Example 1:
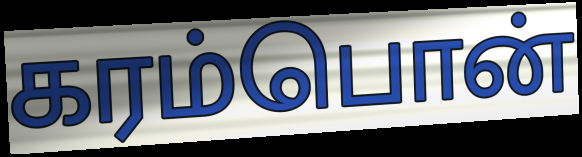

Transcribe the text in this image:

கரம்பொன்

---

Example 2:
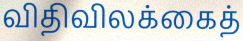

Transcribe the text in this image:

விதிவிலக்கைத்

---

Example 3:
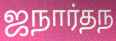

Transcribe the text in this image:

ஜநார்தந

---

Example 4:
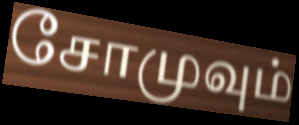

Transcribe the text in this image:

சோமுவும்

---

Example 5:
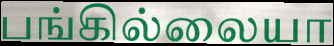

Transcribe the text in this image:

பங்கில்லையா